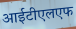
आईटीएलएफ